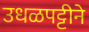
उधळपट्टीने